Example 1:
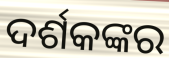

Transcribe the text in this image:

ଦର୍ଶକଙ୍କର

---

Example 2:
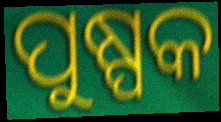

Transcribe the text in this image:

ପୁଷ୍ପକ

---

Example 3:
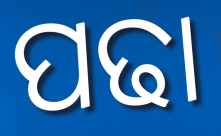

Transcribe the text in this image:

ପଢା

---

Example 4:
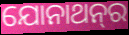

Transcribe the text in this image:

ଯୋନାଥନ୍‍ର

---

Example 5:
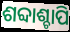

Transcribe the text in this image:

ଶବ୍ଦାଶ୍ଚାପି